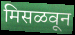
मिसळवून